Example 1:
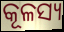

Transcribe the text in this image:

କୂଳସ୍ଯ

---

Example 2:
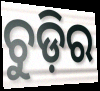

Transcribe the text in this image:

ଚୁଡ଼ିର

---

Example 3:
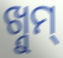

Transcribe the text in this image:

ଖ୍ନୁମ୍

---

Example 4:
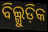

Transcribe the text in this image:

ବିଲ୍ଗୁଡ଼ିକ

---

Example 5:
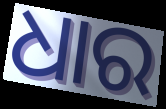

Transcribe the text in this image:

ଧାର